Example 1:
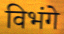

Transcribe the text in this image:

विभंगे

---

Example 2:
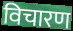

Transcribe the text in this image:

विचारण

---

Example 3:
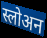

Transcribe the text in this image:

स्लोअन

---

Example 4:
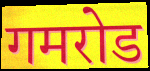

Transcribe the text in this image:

गमरोड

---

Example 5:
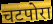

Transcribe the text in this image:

चटपोरा